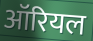
ऑरियल